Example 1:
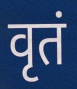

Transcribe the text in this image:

वृतं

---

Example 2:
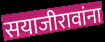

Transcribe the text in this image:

सयाजीरावांना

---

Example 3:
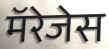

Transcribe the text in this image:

मॅरेजेस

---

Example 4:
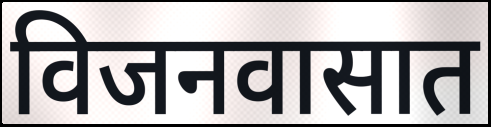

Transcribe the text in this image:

विजनवासात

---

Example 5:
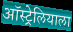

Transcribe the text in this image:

ऑस्ट्रेलियाला